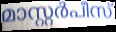
മാസ്റ്റർപീസ്